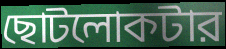
ছোটলোকটার